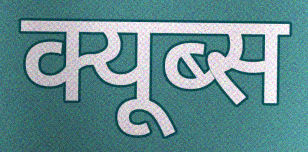
क्यूब्स